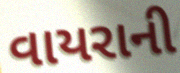
વાયરાની